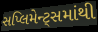
સપ્લિમેન્ટ્સમાંથી